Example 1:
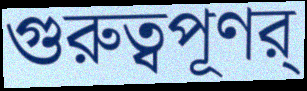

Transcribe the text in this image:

গুরুত্বপূণর্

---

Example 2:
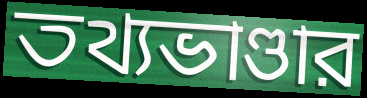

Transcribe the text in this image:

তথ্যভাণ্ডার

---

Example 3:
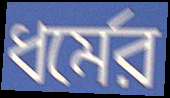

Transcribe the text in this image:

ধর্মের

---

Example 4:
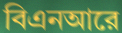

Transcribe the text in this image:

বিএনআরে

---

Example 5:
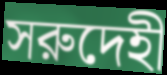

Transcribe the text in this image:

সরুদেহী